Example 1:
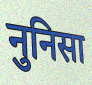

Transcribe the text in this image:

नुनिसा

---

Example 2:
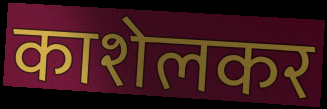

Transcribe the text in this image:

काशेलकर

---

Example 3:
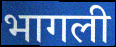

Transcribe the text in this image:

भागली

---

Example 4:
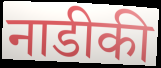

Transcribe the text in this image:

नाडीकी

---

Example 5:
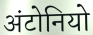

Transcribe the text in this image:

अंटोनियो